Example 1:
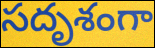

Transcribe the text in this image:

సదృశంగా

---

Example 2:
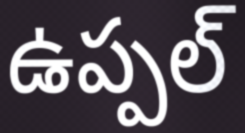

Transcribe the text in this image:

ఉప్పల్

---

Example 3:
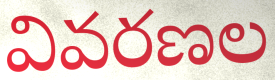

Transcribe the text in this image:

వివరణల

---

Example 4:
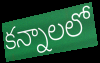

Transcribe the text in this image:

కన్నాలలో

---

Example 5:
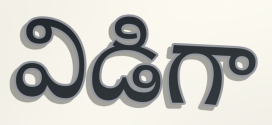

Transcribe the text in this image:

విడిగా